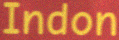
Indon